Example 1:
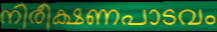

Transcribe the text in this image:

നിരീക്ഷണപാടവം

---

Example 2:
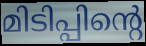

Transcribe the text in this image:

മിടിപ്പിന്റെ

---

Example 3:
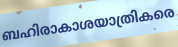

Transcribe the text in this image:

ബഹിരാകാശയാത്രികരെ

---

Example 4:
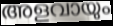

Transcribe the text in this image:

അളവായും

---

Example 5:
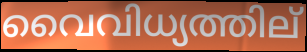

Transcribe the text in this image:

വൈവിധ്യത്തില്